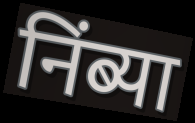
निंब्या